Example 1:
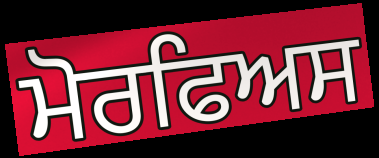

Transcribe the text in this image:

ਮੋਰਫਿਅਸ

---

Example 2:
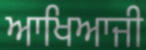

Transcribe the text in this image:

ਆਖਿਆਜੀ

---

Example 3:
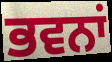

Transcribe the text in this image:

ਭਵਨਾਂ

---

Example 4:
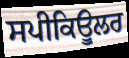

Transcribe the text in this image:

ਸਪੀਕਿਊਲਰ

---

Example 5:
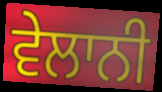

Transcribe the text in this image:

ਵੇਲਾਨੀ